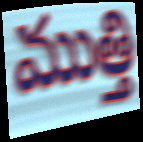
ముత్తి